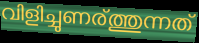
വിളിച്ചുണര്ത്തുന്നത്